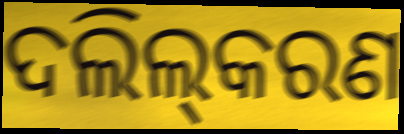
ଦଲିଲ୍‌କରଣ